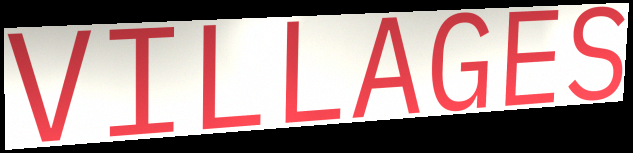
VILLAGES